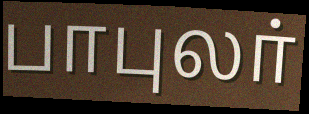
பாபுலர்